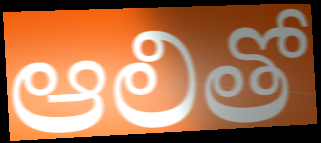
ఆలితో